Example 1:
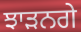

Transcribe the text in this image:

ਝਾੜਨਗੇ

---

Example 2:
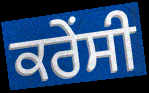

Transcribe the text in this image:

ਕਰੇੰਸੀ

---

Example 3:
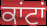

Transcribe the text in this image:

ਕਾਂਟਾਂ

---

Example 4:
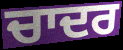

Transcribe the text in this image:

ਚਾਦਰ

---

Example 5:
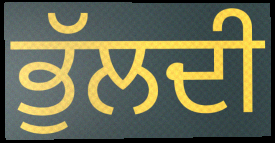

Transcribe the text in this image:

ਭੁੱਲਦੀ